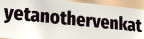
yetanothervenkat